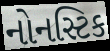
નોનસ્ટિક